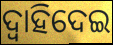
ଦ୍ବାହିଦେଇ